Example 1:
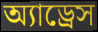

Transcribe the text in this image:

অ্যাড্রেস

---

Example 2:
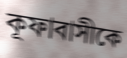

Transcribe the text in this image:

কূফাবাসীকে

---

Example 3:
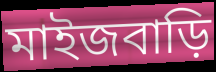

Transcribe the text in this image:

মাইজবাড়ি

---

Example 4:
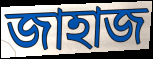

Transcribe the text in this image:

জাহাজ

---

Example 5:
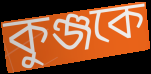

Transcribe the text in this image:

কুঞ্জকে